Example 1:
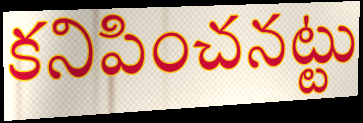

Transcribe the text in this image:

కనిపించనట్టు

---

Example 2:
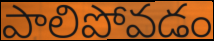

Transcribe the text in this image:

పాలిపోవడం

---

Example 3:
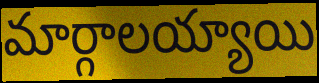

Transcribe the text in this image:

మార్గాలయ్యాయి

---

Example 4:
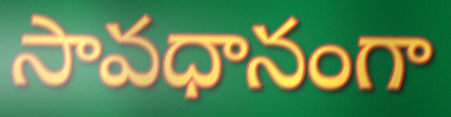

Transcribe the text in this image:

సావధానంగా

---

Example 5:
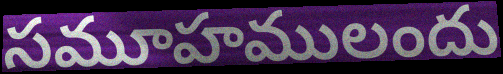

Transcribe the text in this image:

సమూహములందు